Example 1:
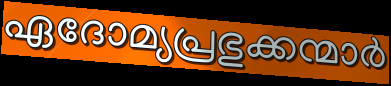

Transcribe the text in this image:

ഏദോമ്യപ്രഭുക്കന്മാർ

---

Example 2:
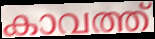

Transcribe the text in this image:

കാവത്ത്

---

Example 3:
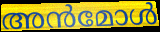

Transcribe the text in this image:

അൻമോൾ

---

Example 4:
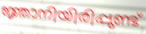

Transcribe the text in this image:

ജ്ഞാനിയിരിപ്പുണ്ട്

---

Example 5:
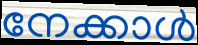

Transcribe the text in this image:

നേക്കാൾ